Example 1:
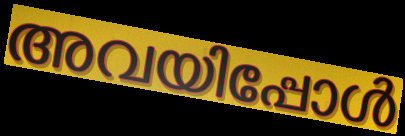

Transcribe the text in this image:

അവയിപ്പോൾ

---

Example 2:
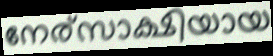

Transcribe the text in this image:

നേര്സാക്ഷിയായ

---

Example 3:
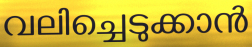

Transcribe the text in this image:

വലിച്ചെടുക്കാൻ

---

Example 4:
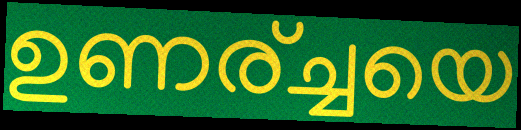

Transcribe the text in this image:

ഉണര്ച്ചയെ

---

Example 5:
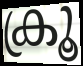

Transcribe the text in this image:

ക്രൂ